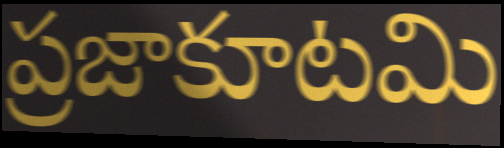
ప్రజాకూటమి